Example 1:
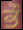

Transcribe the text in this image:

ਭੌ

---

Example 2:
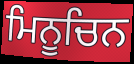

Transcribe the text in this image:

ਮਿਨੂਚਿਨ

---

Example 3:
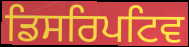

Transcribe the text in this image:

ਡਿਸਰਿਪਟਿਵ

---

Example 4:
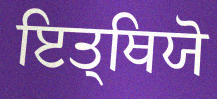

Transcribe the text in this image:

ਇਤ੍ਥਿਯੋ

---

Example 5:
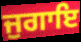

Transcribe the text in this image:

ਜੁਗਾਇ